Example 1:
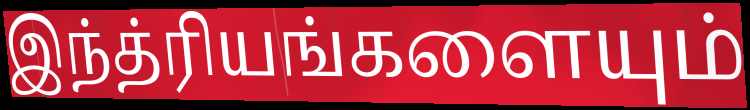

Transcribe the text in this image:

இந்த்ரியங்களையும்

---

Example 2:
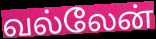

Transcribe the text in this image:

வல்லேன்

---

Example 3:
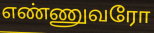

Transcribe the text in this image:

எண்ணுவரோ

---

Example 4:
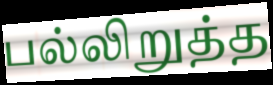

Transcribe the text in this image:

பல்லிறுத்த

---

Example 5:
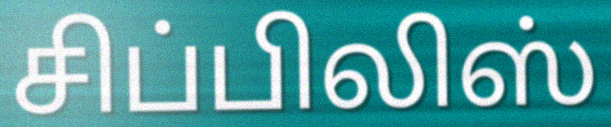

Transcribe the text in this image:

சிப்பிலிஸ்